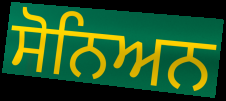
ਸੋਨਿਅਨ